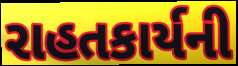
રાહતકાર્યની